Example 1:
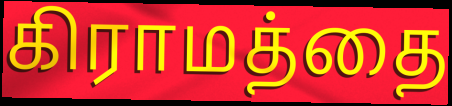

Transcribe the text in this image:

கிராமத்தை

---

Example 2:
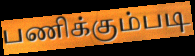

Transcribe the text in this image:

பணிக்கும்படி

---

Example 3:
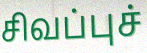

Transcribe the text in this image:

சிவப்புச்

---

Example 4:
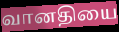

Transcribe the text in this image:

வானதியை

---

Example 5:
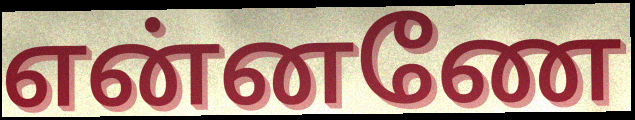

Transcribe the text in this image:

என்னணே